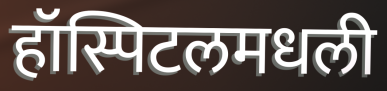
हॉस्पिटलमधली